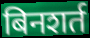
बिनशर्त